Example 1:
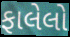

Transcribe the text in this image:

ફાલેલો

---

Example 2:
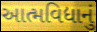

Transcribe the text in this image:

આત્મવિદ્યાનું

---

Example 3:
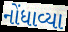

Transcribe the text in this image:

નોંધાવ્યા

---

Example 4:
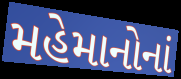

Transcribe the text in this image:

મહેમાનોનાં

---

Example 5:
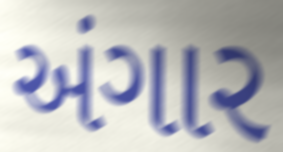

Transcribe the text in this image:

અંગાર